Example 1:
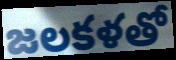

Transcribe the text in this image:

జలకళతో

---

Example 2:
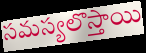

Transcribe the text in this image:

సమస్యలొస్తాయి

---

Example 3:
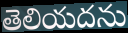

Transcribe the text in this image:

తెలియదను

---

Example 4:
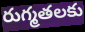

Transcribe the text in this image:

రుగ్మతలకు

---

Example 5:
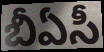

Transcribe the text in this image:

బీఏసీ